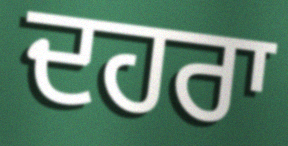
ਦਹਰਾ